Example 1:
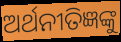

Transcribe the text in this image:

ଅର୍ଥନୀତିଜ୍ଞଙ୍କୁ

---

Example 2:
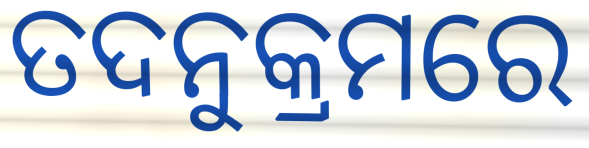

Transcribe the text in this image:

ତଦନୁକ୍ରମରେ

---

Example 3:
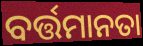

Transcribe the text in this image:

ବର୍ତ୍ତମାନତା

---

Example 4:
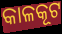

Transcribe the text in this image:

କାଳକୂଟ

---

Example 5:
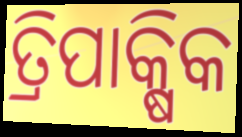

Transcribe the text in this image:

ତ୍ରିପାକ୍ଷିକ